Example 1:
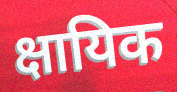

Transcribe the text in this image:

क्षायिक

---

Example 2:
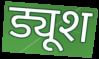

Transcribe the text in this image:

ड्यूश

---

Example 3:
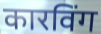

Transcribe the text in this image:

कारविंग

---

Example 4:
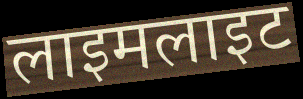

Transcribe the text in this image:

लाइमलाइट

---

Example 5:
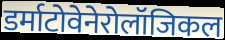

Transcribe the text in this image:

डर्माटोवेनेरोलॉजिकल